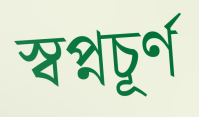
স্বপ্নচূর্ণ